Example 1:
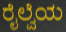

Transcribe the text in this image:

ರೈಲ್ವೆಯ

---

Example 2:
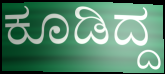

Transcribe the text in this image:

ಕೂಡಿದ್ದ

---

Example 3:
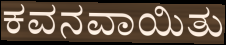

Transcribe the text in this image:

ಕವನವಾಯಿತು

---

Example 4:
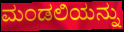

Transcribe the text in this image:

ಮಂಡಲಿಯನ್ನು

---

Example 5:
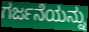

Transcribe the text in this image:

ಗರ್ಜನೆಯನ್ನು